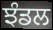
ਝੰਡਲ